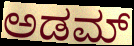
ಅಡಮ್